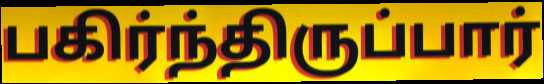
பகிர்ந்திருப்பார்